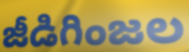
జీడిగింజల